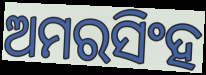
ଅମରସିଂହ